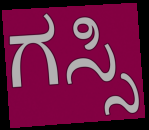
ಗಸ್ಸಿ